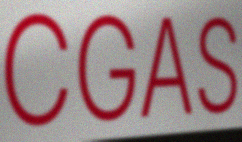
CGAS